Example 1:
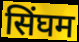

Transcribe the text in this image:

सिंघम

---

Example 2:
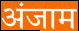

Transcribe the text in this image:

अंजाम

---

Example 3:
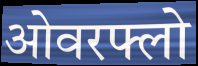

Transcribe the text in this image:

ओवरफ्लो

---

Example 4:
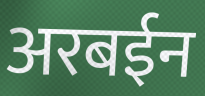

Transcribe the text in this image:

अरबईन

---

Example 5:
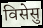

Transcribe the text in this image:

विसेसु